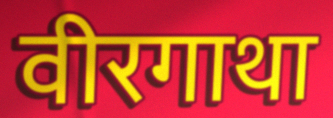
वीरगाथा